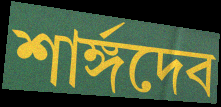
শার্ঙ্গদেব